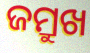
ଜମ୍ରୁଖ